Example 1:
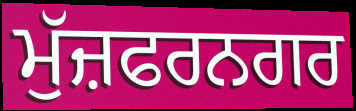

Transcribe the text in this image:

ਮੁੱਜ਼ਫਰਨਗਰ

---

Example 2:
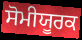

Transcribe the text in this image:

ਸੋਮੀਯੂਰਕ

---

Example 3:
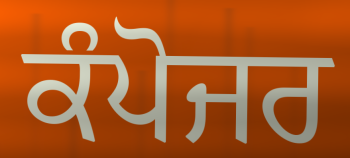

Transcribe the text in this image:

ਕੰਪੋਜਰ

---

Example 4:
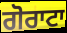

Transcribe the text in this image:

ਗੋਰਾਟਾ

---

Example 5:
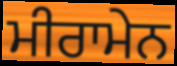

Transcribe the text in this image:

ਮੀਰਾਮੇਨ